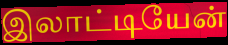
இலாட்டியேன்